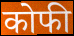
कोफी